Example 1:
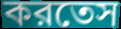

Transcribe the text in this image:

করতেস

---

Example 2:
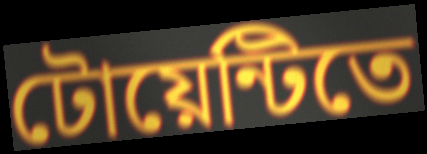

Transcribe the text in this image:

টোয়েন্টিতে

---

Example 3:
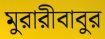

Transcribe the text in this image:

মুরারীবাবুর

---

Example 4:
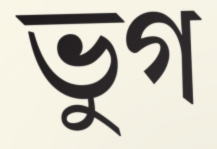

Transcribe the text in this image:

ভুগ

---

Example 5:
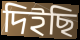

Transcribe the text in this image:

দিইছি